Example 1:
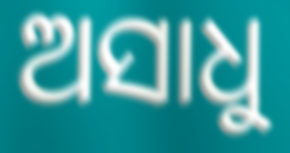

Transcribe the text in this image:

ଅସାଧୁ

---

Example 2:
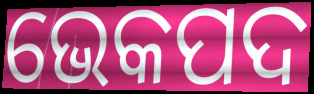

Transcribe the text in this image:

ଭେକପଦ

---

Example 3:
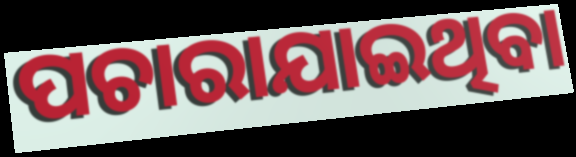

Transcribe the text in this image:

ପଚାରାଯାଇଥିବା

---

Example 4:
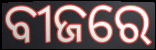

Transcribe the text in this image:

ବୀଜରେ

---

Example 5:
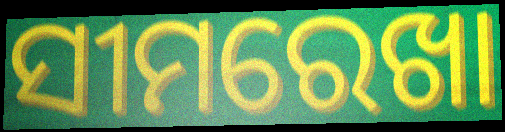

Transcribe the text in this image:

ସୀମରେଖା